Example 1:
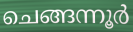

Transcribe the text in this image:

ചെങ്ങന്നൂർ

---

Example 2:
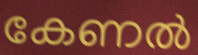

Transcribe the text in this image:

കേണൽ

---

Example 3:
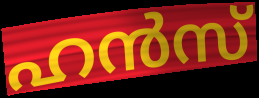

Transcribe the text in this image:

ഹൻസ്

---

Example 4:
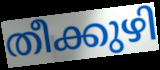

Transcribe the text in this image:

തീക്കുഴി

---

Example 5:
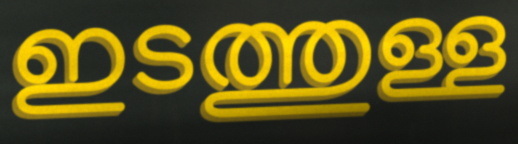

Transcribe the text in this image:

ഇടത്തുള്ള